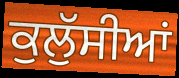
ਕੁਲੁੱਸੀਆਂ